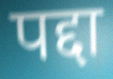
पद्दा